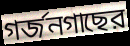
গর্জনগাছের